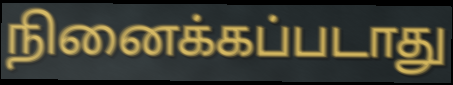
நினைக்கப்படாது